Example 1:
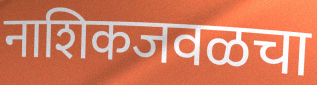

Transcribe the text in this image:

नाशिकजवळचा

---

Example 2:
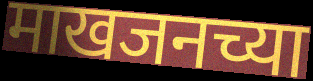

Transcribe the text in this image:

माखजनच्या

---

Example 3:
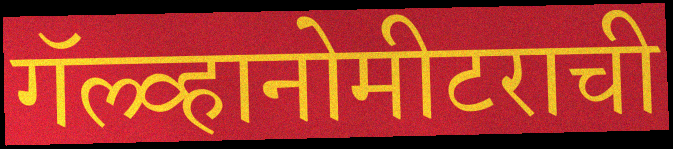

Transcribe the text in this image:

गॅल्व्हानोमीटराची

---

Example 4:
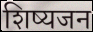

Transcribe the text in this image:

शिष्यजन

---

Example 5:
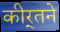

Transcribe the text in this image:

कीर्तने